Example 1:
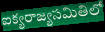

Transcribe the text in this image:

ఐక్యరాజ్యసమితిలో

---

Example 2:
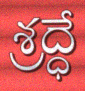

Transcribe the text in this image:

శ్రద్ధే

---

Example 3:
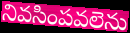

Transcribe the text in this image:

నివసింపవలెను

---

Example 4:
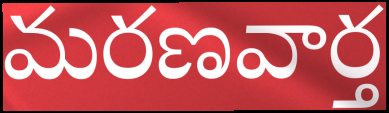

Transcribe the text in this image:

మరణవార్త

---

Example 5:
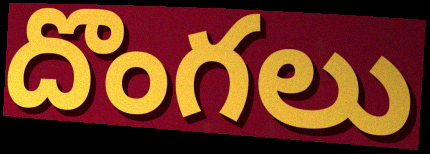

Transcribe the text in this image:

దొంగలు